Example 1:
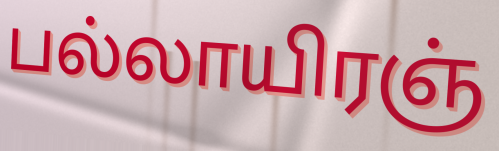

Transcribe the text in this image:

பல்லாயிரஞ்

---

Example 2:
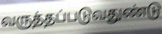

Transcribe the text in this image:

வருத்தப்படுவதுண்டு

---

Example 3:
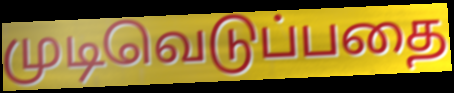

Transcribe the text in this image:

முடிவெடுப்பதை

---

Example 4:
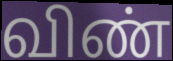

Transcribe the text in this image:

விண்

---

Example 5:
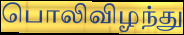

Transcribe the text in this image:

பொலிவிழந்து